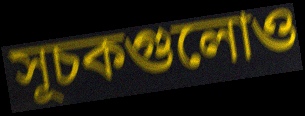
সূচকগুলোও